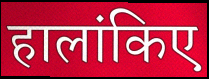
हालांकिए